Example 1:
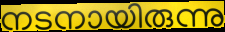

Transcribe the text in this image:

നടനായിരുന്നു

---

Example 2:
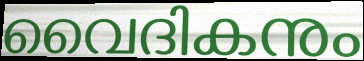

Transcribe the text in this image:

വൈദികനും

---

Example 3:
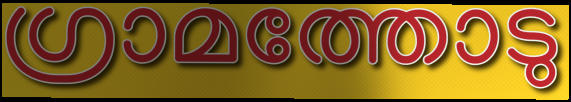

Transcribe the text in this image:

ഗ്രാമത്തോടു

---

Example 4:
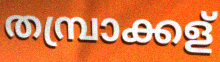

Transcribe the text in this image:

തമ്പ്രാക്കള്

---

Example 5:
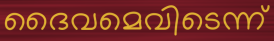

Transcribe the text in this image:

ദൈവമെവിടെന്ന്